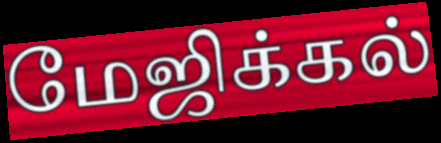
மேஜிக்கல்